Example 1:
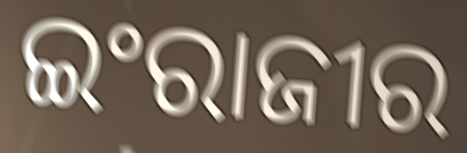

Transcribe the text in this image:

ଇଂରାଜୀର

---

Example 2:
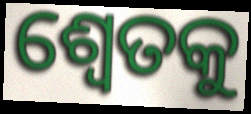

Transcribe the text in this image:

ଶ୍ଵେତକୁ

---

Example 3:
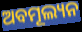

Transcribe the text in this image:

ଅବମୂଲ୍ୟନ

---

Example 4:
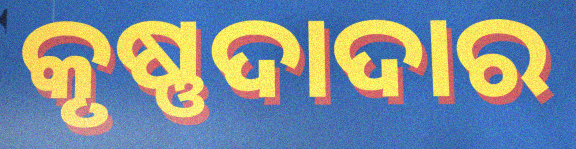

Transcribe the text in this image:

କୃଷ୍ଣଦାଦାର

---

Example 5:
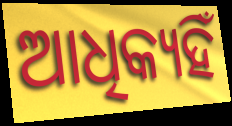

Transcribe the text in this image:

ଆଧିକ୍ୟହିଁ